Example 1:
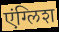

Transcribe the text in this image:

एंग्लिश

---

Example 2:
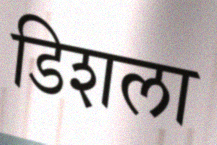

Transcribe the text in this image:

डिशला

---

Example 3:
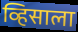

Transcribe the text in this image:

व्हिसाला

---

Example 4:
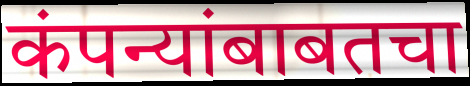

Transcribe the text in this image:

कंपन्यांबाबतचा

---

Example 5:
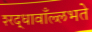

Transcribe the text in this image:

श्रद्धावाँल्लभते